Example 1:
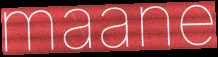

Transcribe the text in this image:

maane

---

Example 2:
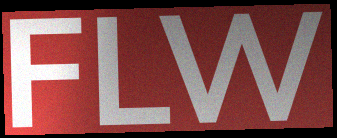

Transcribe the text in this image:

FLW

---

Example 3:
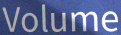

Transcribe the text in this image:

Volume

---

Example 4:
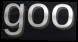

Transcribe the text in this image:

goo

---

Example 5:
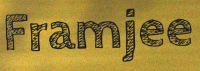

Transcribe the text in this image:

Framjee